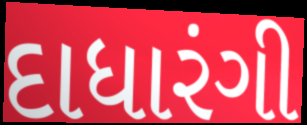
દાધારંગી